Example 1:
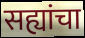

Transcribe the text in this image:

सह्यांचा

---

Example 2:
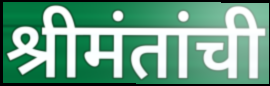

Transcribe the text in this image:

श्रीमंतांची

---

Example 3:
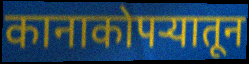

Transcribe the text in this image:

कानाकोपर्‍यातून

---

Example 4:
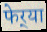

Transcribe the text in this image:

फेर्या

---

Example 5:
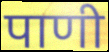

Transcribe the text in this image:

पाणी